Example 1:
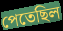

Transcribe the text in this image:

পেতেছিল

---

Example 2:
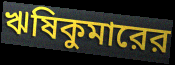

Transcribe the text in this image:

ঋষিকুমারের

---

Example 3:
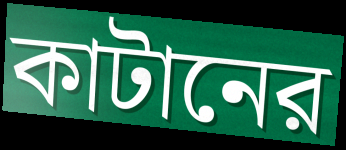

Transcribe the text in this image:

কাটানের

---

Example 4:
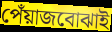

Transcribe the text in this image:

পেঁয়াজবোঝাই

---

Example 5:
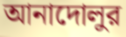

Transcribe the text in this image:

আনাদোলুর